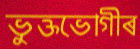
ভুক্তভোগীৰ